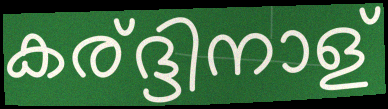
കര്ദ്ദിനാള്